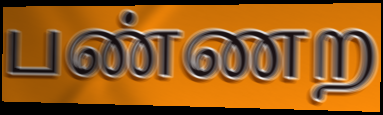
பண்ணற